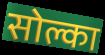
सोल्का